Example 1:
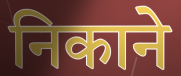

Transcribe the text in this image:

निकाने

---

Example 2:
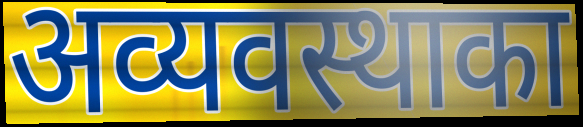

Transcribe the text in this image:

अव्यवस्थाका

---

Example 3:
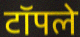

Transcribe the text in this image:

टॉपले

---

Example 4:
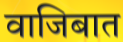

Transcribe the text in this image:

वाजिबात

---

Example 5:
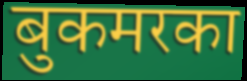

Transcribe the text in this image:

बुकमरका